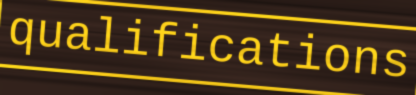
qualifications